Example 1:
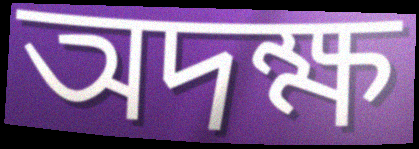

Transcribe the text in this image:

অদক্ষ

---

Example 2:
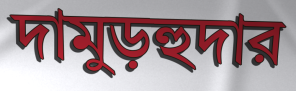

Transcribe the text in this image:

দামুড়হুদার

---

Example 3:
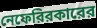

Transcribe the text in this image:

নেফেরিরকারের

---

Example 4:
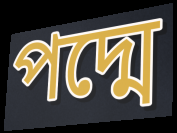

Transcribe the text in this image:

পদ্মে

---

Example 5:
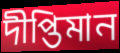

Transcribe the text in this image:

দীপ্তিমান